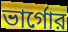
ভার্গোর